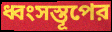
ধ্বংসস্তূপের